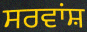
ਸਰਵਾਂਸ਼